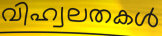
വിഹ്വലതകൾ